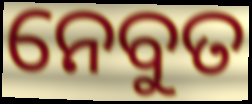
ନେବୁତ